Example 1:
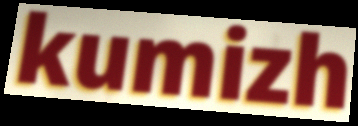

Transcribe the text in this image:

kumizh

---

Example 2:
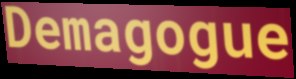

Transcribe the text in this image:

Demagogue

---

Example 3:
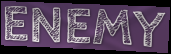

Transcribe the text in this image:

ENEMY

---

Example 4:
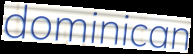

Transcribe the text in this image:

dominican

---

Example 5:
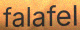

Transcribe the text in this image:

falafel